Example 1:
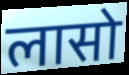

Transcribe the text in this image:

लासो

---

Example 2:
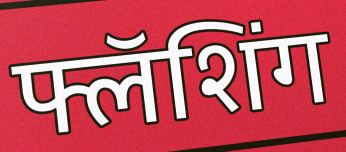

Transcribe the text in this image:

फ्लॅशिंग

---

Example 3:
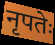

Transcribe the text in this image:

नृपतेः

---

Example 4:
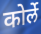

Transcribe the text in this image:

कोर्ले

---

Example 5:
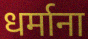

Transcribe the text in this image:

धर्माना